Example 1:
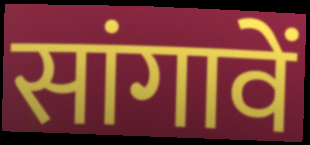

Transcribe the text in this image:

सांगावें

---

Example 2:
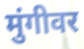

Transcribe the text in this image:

मुंगीवर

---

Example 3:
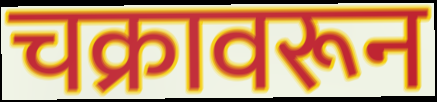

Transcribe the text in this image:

चक्रावरून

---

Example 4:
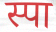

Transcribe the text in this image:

स्पा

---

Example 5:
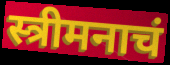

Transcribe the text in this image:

स्त्रीमनाचं